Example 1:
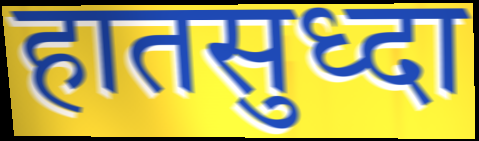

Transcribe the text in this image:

हातसुध्दा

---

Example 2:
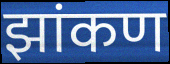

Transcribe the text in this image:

झांकण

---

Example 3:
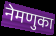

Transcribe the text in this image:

नेमणुका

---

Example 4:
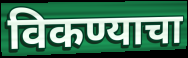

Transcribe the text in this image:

विकण्याचा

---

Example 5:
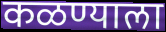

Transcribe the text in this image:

कळण्याला